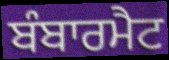
ਬੰਬਾਰਮੈਟ